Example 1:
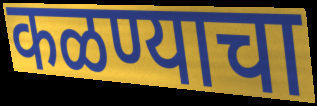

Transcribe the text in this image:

कळण्याचा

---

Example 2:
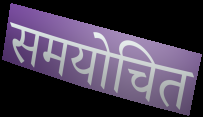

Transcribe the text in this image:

समयोचित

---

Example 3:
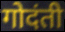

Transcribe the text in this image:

गोदंती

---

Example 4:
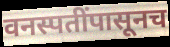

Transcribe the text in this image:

वनस्पतींपासूनच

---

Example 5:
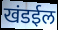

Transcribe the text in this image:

खंडईल